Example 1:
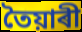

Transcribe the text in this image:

তৈয়াৰী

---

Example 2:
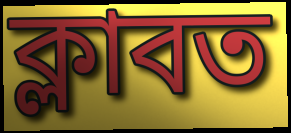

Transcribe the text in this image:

ক্লাবত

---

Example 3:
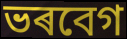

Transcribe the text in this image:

ভৰবেগ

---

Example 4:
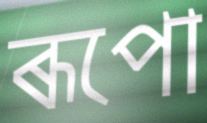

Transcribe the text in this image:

ৰূপো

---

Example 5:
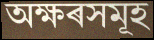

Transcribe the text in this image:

অক্ষৰসমূহ